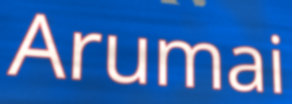
Arumai